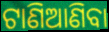
ଟାଣିଆଣିବା